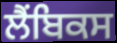
ਲੈਂਬਿਕਸ